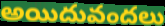
అయిదువందలు